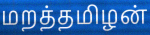
மறத்தமிழன்